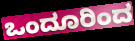
ಒಂದೂರಿಂದ